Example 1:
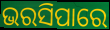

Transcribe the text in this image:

ଭରସିପାରେ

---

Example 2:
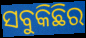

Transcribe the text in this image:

ସବୁକିଛିର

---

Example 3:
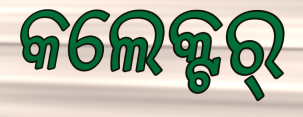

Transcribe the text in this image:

କଲେକ୍ଟର୍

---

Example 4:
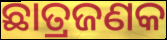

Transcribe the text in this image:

ଛାତ୍ରଜଣକ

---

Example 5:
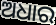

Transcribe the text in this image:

ଅଧାର